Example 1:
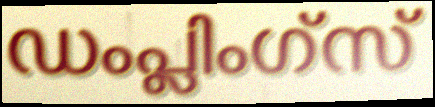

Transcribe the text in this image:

ഡംപ്ലിംഗ്സ്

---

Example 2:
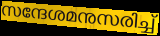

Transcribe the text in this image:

സന്ദേശമനുസരിച്ച്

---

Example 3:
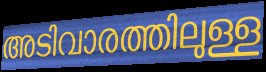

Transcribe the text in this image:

അടിവാരത്തിലുള്ള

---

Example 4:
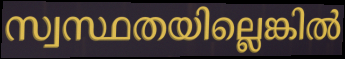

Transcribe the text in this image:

സ്വസ്ഥതയില്ലെങ്കിൽ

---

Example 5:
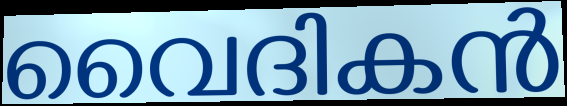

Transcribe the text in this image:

വൈദികൻ